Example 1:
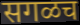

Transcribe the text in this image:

सगळच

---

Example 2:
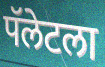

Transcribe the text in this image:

पॅलेटला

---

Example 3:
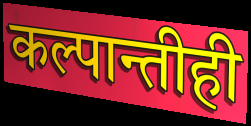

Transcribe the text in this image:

कल्पान्तीही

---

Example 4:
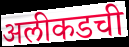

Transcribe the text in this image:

अलीकडची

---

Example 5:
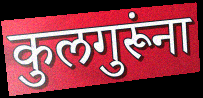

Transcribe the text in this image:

कुलगुरूंना